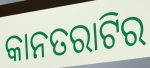
କାନତରାଟିର